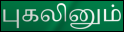
புகலினும்